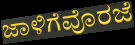
ಜಾಳಿಗೆವೊರಜೆ